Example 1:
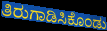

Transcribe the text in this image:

ತಿರುಗಾಡಿಸಿಕೊಂಡು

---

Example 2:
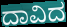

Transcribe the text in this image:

ದಾವಿದ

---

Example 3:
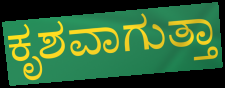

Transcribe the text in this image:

ಕೃಶವಾಗುತ್ತಾ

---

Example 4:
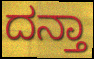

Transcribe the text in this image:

ದನ್ತಾ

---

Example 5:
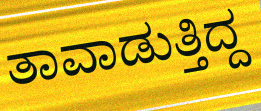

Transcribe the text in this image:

ತಾವಾಡುತ್ತಿದ್ದ